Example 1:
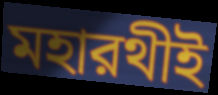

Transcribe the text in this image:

মহারথীই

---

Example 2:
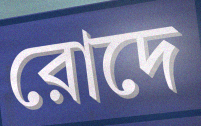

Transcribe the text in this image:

রোদে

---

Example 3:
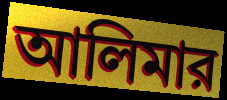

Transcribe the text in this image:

আলিমার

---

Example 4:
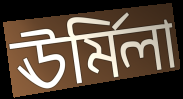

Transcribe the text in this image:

ঊর্মিলা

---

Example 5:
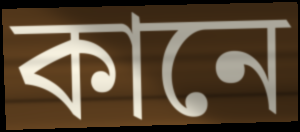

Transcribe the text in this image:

কানে